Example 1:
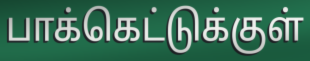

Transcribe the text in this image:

பாக்கெட்டுக்குள்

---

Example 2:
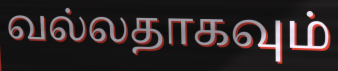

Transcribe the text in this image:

வல்லதாகவும்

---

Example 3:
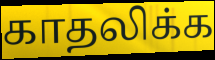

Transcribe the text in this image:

காதலிக்க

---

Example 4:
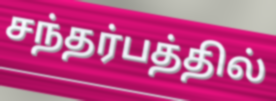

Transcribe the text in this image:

சந்தர்பத்தில்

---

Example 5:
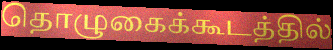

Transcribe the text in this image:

தொழுகைக்கூடத்தில்